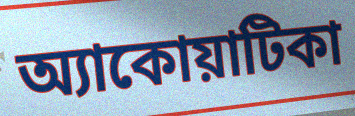
অ্যাকোয়াটিকা